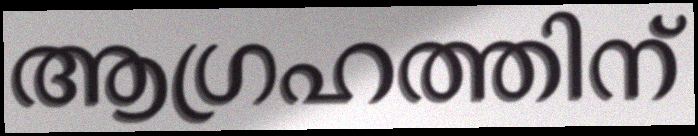
ആഗ്രഹത്തിന്